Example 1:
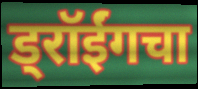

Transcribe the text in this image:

ड्रॉईंगचा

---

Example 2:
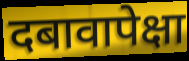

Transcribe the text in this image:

दबावापेक्षा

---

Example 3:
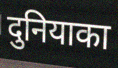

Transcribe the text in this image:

दुनियाका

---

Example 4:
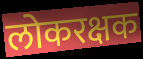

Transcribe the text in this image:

लोकरक्षक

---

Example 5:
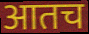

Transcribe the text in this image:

आतच